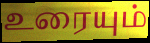
உரையும்